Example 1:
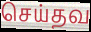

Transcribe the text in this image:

செய்தவ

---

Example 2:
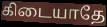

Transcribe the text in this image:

கிடையாதே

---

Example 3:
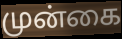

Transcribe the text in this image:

முன்கை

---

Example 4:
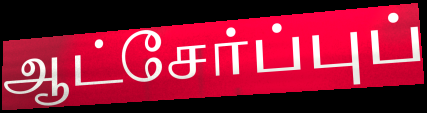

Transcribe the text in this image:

ஆட்சேர்ப்புப்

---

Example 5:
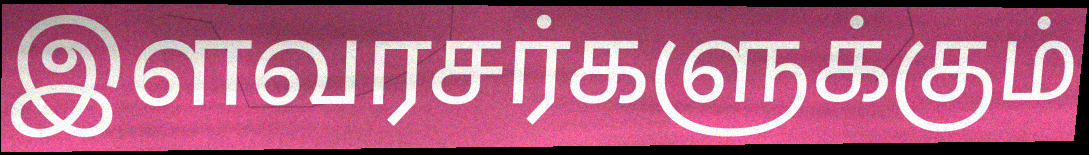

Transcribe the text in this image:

இளவரசர்களுக்கும்